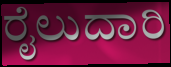
ರೈಲುದಾರಿ